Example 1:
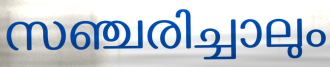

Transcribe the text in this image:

സഞ്ചരിച്ചാലും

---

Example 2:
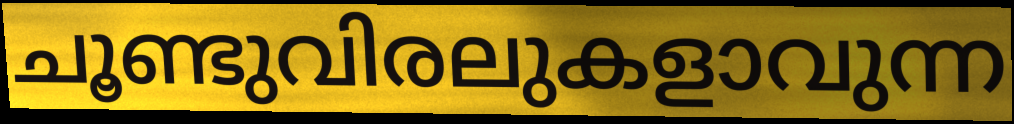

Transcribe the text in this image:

ചൂണ്ടുവിരലുകളാവുന്ന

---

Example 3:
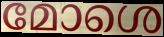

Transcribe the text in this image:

മോശെ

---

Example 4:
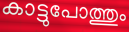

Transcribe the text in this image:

കാട്ടുപോത്തും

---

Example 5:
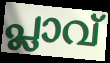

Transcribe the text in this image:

പ്ലാവ്